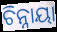
ଚିନ୍ନାୟା